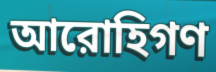
আরোহিগণ